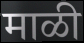
माळी